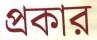
প্রকার